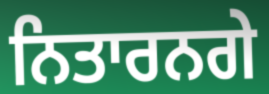
ਨਿਤਾਰਨਗੇ